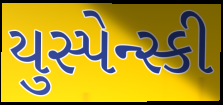
યુસ્પેન્સ્કી